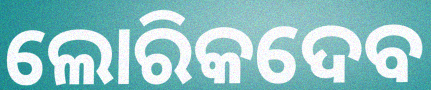
ଲୋରିକଦେବ